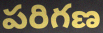
పరిగణ